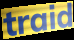
traid